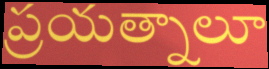
ప్రయత్నాలూ